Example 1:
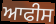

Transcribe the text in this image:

ਆਫੀਸ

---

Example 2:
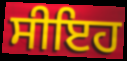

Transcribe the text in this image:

ਸੀਇਹ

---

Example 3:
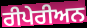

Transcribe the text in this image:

ਰੀਪੇਰੀਅਨ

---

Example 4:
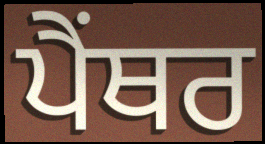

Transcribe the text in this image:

ਪੈੰਥਰ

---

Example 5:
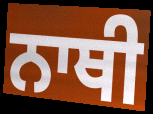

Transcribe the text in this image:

ਨਾਥੀ